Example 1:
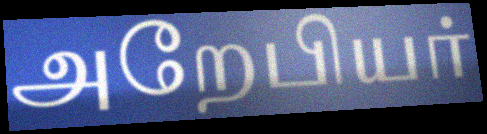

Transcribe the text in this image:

அறேபியர்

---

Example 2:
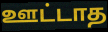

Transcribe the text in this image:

ஊட்டாத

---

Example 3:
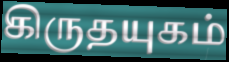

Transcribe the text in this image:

கிருதயுகம்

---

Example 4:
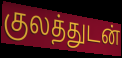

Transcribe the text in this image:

குலத்துடன்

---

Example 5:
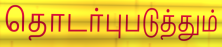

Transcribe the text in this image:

தொடர்புபடுத்தும்